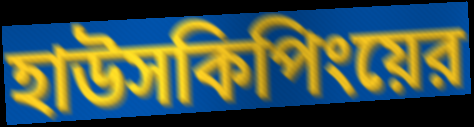
হাউসকিপিংয়ের